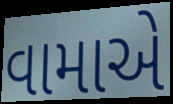
વામાએ